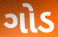
ગોડ